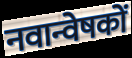
नवान्वेषकों